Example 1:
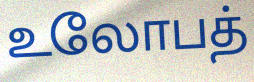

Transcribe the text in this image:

உலோபத்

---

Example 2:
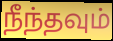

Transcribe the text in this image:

நீந்தவும்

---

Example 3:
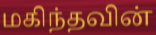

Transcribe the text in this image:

மகிந்தவின்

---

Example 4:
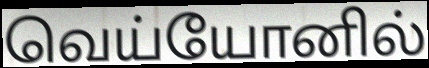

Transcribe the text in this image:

வெய்யோனில்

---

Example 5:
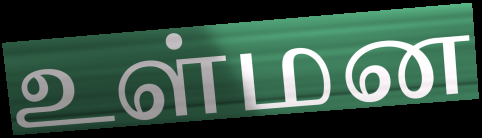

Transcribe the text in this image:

உள்மன